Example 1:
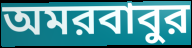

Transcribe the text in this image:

অমরবাবুর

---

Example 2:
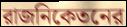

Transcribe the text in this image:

রাজনিকেতনের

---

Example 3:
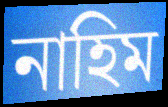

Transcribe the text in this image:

নাহিম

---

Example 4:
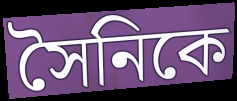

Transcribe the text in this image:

সৈনিকে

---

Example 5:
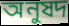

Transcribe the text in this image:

অনুষদ